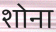
शोना